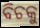
ବିଚକୁ